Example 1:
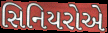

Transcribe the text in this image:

સિનિયરોએ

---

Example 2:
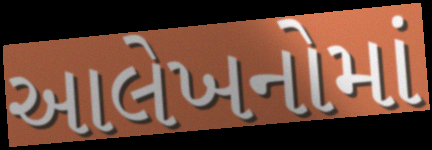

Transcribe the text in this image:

આલેખનોમાં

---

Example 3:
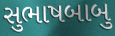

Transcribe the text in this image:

સુભાષબાબુ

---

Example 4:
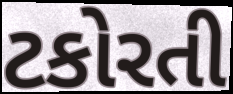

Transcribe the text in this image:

ટકોરતી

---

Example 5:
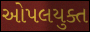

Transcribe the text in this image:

ઓપલયુક્ત